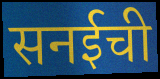
सनईची